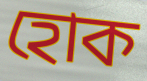
হোক